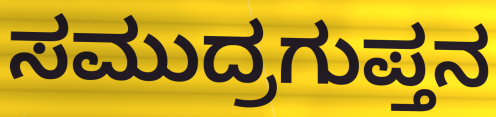
ಸಮುದ್ರಗುಪ್ತನ